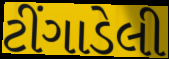
ટીંગાડેલી